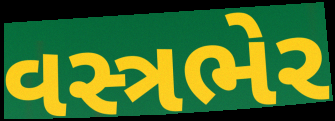
વસ્ત્રભેર